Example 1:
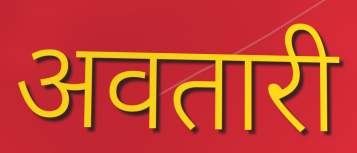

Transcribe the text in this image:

अवतारी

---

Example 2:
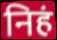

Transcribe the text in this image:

निहं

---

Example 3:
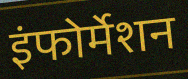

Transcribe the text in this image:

इंफोर्मेशन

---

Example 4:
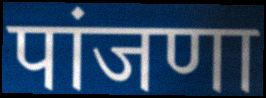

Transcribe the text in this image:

पांजणा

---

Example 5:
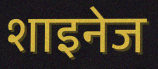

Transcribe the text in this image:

शाइनेज